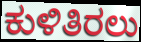
ಕುಳಿತಿರಲು